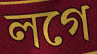
লগে